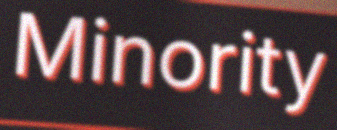
Minority